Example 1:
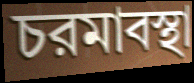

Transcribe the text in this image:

চরমাবস্থা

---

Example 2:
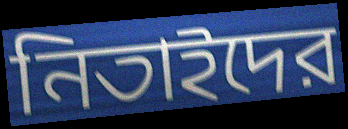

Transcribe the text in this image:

নিতাইদের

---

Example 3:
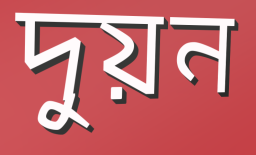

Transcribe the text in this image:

দুয়ন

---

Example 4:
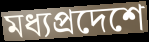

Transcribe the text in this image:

মধ্যপ্রদেশে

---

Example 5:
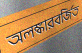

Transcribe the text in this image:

অলঙ্কারবর্জিত